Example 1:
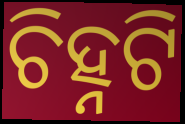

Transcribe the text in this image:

ଚିହ୍ନଟି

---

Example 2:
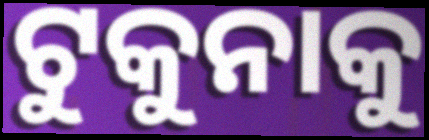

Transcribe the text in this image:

ଟୁକୁନାକୁ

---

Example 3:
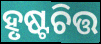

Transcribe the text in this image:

ହୃଷ୍ଟଚିତ୍ତ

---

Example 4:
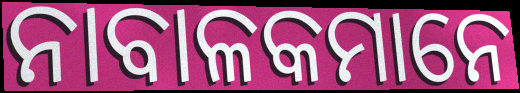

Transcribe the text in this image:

ନାବାଳକମାନେ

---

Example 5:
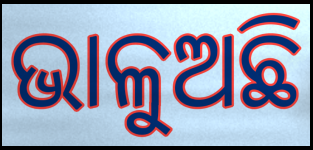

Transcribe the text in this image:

ଭାଳୁଅଛି